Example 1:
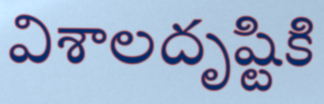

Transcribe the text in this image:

విశాలదృష్టికి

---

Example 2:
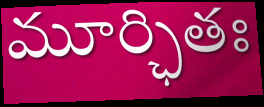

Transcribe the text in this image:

మూర్ఛితః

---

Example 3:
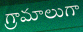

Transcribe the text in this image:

గ్రామాలుగా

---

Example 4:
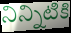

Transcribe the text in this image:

నిన్నిటికి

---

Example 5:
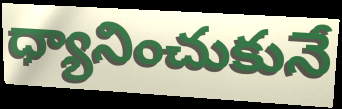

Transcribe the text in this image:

ధ్యానించుకునే